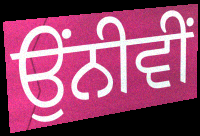
ਉੰਨੀਵੀਂ